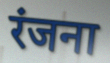
रंजना